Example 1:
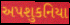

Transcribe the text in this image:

અપશુકનિયા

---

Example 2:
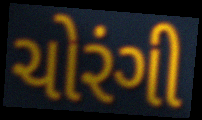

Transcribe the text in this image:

ચોરંગી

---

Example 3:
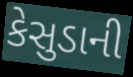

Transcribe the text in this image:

કેસુડાની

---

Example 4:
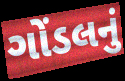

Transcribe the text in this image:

ગોંડલનું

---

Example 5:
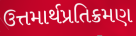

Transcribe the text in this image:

ઉત્તમાર્થપ્રતિક્રમણ